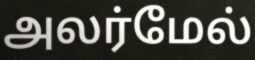
அலர்மேல்